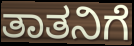
ತಾತನಿಗೆ